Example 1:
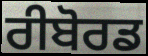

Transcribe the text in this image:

ਰੀਬੋਰਡ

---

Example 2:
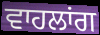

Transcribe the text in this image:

ਵਾਹਲਾਂਗ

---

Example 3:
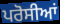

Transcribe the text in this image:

ਪਰੋਸੀਆਂ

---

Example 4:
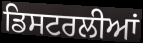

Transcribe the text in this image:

ਡਿਸਟਰਲੀਆਂ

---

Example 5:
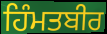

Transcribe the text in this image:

ਹਿੰਮਤਬੀਰ